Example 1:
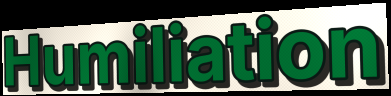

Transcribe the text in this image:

Humiliation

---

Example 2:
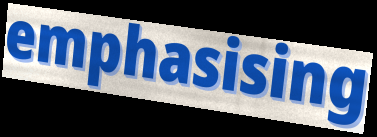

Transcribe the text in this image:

emphasising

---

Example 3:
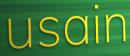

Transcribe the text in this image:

usain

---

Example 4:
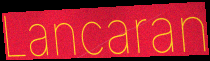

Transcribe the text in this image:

Lancaran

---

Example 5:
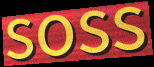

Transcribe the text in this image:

soss